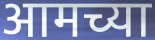
आमच्या